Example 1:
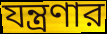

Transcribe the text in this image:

যন্ত্রণার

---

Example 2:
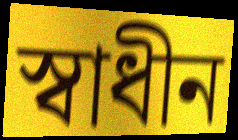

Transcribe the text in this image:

স্বাধীন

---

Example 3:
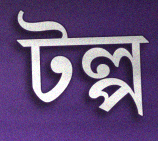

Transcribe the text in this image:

টল্প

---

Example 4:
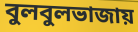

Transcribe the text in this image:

বুলবুলভাজায়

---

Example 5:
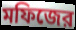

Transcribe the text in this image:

মফিজের